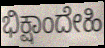
ಭಿಕ್ಷಾಂದೇಹಿ